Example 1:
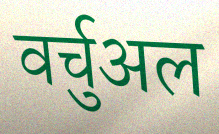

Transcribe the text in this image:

वर्चुअल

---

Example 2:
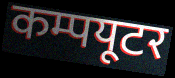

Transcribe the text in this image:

कम्पयूटर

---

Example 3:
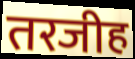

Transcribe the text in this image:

तरजीह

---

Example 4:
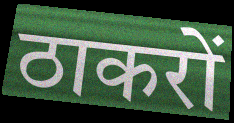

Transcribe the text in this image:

ठाकरों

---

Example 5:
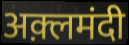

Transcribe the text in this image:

अक़्लमंदी